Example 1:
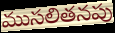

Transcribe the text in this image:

ముసలితనపు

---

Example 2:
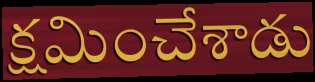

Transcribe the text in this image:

క్షమించేశాడు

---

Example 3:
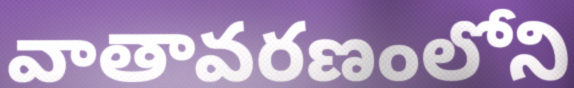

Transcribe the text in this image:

వాతావరణంలోని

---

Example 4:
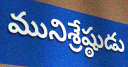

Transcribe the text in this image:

మునిశ్రేష్ఠుడు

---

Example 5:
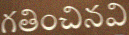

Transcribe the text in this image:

గతించినవి